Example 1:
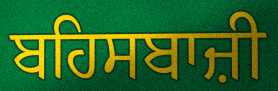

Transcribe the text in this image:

ਬਹਿਸਬਾਜ਼ੀ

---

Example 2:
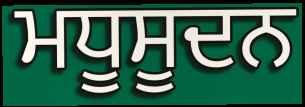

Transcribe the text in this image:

ਮਧੂਸੂਦਨ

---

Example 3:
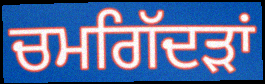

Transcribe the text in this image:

ਚਮਗਿੱਦੜਾਂ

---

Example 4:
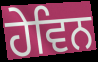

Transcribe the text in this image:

ਹੇਵਿਨ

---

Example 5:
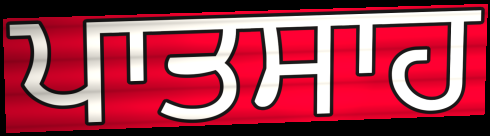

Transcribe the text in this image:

ਪਾਤਸਾਹ